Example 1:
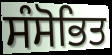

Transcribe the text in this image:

ਸੰਸੋਭਿਤ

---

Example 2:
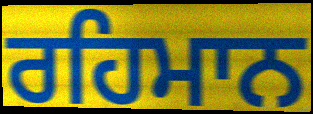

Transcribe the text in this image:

ਰਹਿਮਾਨ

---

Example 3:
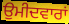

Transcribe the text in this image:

ਉਮੀਦਵਾਰਾਂ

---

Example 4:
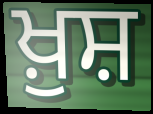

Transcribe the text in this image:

ਖ਼ੁਸ਼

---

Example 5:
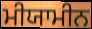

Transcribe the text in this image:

ਮੀਯਾਮੀਨ